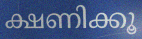
ക്ഷണിക്കൂ